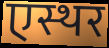
एस्थर